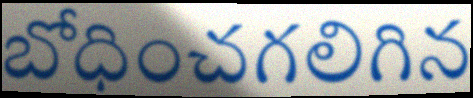
బోధించగలిగిన